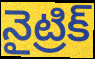
నైట్రిక్